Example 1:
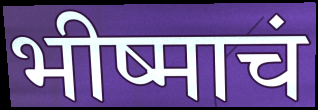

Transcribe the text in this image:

भीष्माचं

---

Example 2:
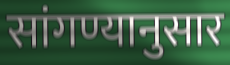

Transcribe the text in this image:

सांगण्यानुसार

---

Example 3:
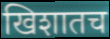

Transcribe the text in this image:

खिशातच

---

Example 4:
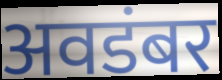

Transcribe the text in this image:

अवडंबर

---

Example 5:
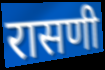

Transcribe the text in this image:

रासणी